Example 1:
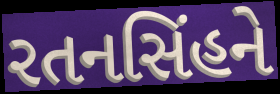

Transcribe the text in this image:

રતનસિંહને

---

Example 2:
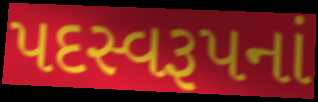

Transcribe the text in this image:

પદસ્વરૂપનાં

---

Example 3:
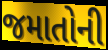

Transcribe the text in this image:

જમાતોની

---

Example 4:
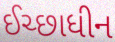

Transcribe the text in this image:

ઈચ્છાધીન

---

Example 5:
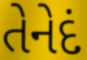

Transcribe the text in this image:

તેનેદં